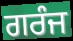
ਗਰੰਜ